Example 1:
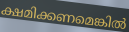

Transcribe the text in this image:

ക്ഷമിക്കണമെങ്കിൽ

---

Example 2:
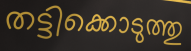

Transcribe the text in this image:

തട്ടിക്കൊടുത്തു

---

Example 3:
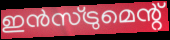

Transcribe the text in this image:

ഇൻസ്ട്രുമെന്റ്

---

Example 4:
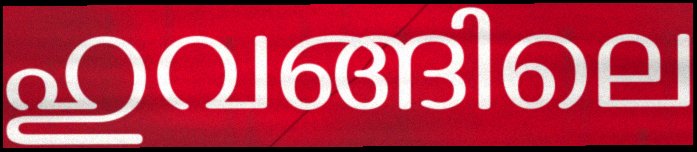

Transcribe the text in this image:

ഹുവങ്ങിലെ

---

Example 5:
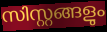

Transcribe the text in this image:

സിസ്റ്റങ്ങളും